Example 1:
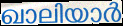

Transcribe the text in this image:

ഖാലിയാർ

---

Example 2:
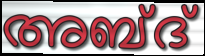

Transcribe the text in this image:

അബ്ദ്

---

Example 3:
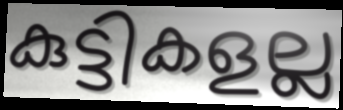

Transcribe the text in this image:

കുട്ടികളല്ല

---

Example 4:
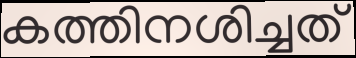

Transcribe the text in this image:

കത്തിനശിച്ചത്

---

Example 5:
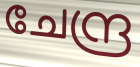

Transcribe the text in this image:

ചേന്ദ്ര